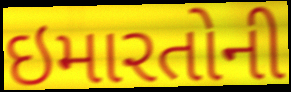
ઇમારતોની